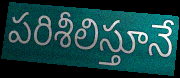
పరిశీలిస్తూనే